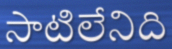
సాటిలేనిది